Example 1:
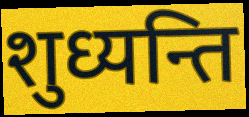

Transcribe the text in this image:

शुध्यन्ति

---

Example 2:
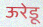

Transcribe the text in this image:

ऊरेडू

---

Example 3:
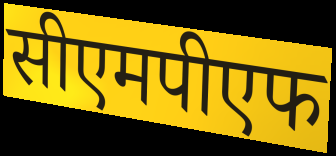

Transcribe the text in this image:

सीएमपीएफ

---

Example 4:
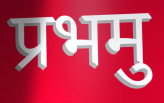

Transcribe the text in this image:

प्रभमु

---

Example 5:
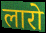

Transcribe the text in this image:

लारो